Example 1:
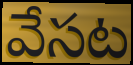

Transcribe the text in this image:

వేసట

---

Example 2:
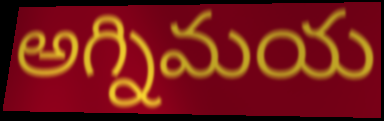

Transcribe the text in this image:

అగ్నిమయ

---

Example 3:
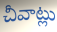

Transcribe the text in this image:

చీవాట్లు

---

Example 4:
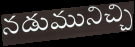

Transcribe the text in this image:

నడుమునిచ్చి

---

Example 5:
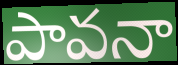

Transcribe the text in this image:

పావనా